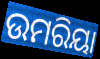
ଉମରିୟା